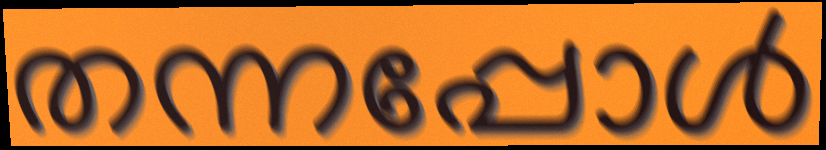
തന്നപ്പോൾ